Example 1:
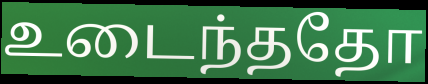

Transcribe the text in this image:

உடைந்ததோ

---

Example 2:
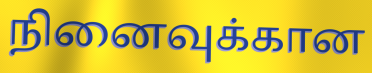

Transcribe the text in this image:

நினைவுக்கான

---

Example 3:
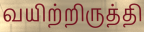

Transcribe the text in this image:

வயிற்றிருத்தி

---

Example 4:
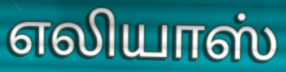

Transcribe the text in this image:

எலியாஸ்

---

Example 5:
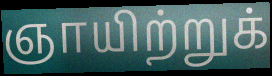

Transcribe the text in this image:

ஞாயிற்றுக்